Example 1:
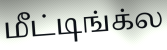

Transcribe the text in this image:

மீட்டிங்க்ல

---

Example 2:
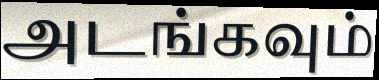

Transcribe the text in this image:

அடங்கவும்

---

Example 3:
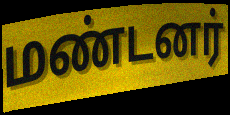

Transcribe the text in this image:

மண்டனர்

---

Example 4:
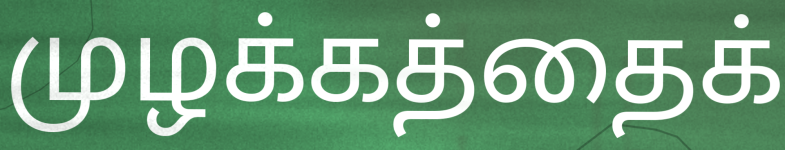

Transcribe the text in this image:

முழக்கத்தைக்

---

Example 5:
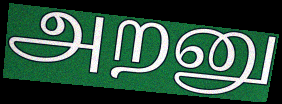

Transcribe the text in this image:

அறனு